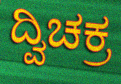
ದ್ವಿಚಕ್ರ